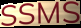
SSMS